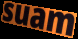
suam